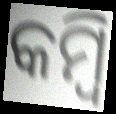
କମ୍ବି